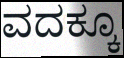
ವದಕ್ಕೂ